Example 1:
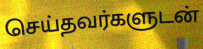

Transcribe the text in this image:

செய்தவர்களுடன்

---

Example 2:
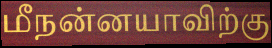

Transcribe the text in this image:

மீநன்னயாவிற்கு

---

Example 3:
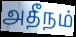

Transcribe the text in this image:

அதீநம்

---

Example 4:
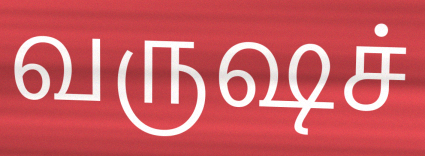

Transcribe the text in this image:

வருஷச்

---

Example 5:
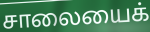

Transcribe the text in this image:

சாலையைக்